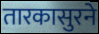
तारकासुरने